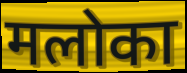
मलोका